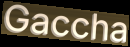
Gaccha